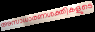
അസാധാരണശക്തികളുടെ